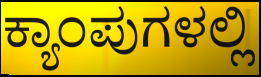
ಕ್ಯಾಂಪುಗಳಲ್ಲಿ